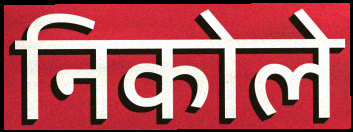
निकोले